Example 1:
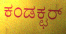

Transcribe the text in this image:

ಕಂಡಕ್ಟರ್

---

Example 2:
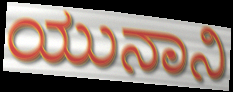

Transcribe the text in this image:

ಯುನಾನಿ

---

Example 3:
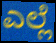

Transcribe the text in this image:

ಎಲ್ಲೆ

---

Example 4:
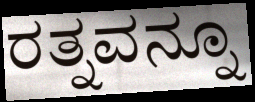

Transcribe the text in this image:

ರತ್ನವನ್ನೂ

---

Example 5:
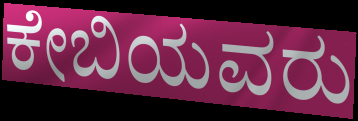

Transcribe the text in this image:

ಕೇಬಿಯವರು